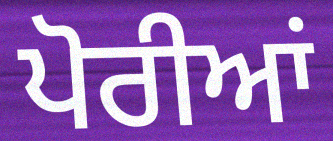
ਪੋਰੀਆਂ